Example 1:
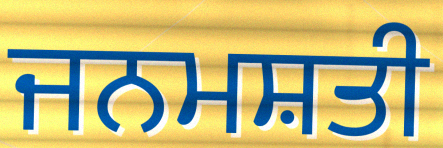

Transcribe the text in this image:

ਜਨਮਸ਼ਤੀ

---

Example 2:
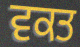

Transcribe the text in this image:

ਵਕਤ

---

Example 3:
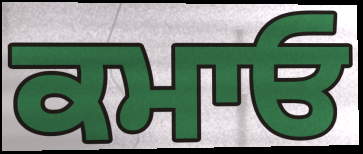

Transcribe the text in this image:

ਕਮਾਓ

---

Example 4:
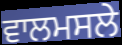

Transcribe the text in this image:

ਵਾਲਮਸਲੇ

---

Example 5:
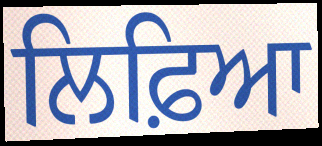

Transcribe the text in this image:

ਲਿਫ਼ਿਆ